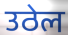
उठेल